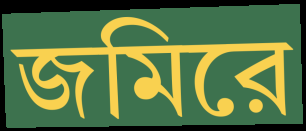
জমিরে